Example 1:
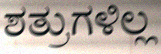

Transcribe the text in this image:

ಶತ್ರುಗಳಿಲ್ಲ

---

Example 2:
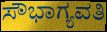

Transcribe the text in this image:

ಸೌಭಾಗ್ಯವತಿ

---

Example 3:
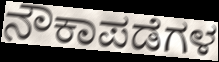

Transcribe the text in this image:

ನೌಕಾಪಡೆಗಳ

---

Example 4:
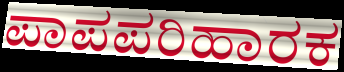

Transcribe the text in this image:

ಪಾಪಪರಿಹಾರಕ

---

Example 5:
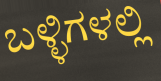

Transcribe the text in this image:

ಬಳ್ಳಿಗಳಲ್ಲಿ